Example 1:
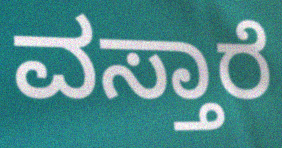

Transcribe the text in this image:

ವಸ್ತಾರೆ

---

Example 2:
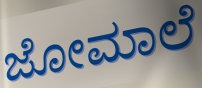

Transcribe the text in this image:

ಜೋಮಾಲೆ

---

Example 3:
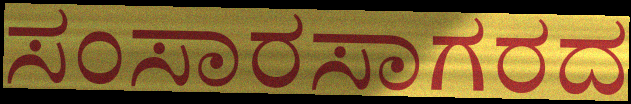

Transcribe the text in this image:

ಸಂಸಾರಸಾಗರದ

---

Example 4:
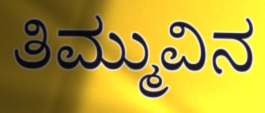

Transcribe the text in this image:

ತಿಮ್ಮುವಿನ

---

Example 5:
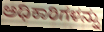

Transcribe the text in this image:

ಅಧಿಕಾರಿಗಳನ್ನು